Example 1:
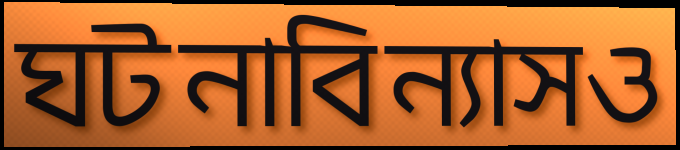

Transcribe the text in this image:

ঘটনাবিন্যাসও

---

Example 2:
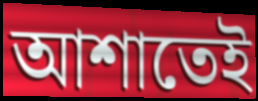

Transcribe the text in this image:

আশাতেই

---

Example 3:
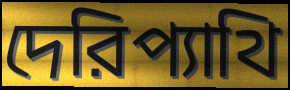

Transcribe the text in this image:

দেরিপ্যাথি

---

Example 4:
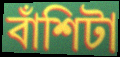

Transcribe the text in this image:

বাঁশিটা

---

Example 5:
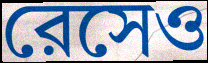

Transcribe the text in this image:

রেসেও